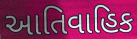
આતિવાહિક